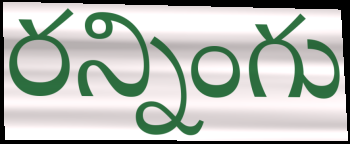
రన్నింగు